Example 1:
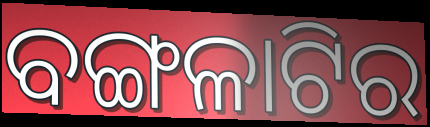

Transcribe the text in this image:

ବଙ୍ଗଳାଟିର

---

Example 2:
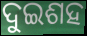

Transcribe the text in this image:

ଦୁଇଶହ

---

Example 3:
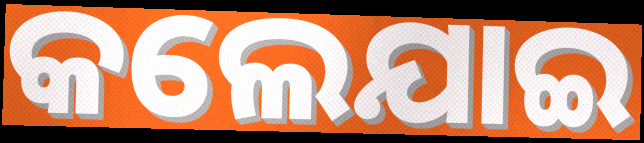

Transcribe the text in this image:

କଲେଯାଇ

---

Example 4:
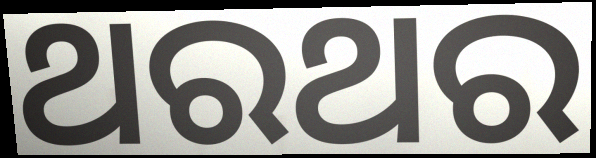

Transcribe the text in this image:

ଥରଥର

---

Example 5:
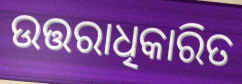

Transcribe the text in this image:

ଉତ୍ତରାଧିକାରିତ